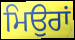
ਮਿਉਰਾਂ